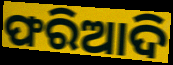
ଫରିଆଦି